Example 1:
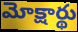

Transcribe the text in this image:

మోక్షార్థు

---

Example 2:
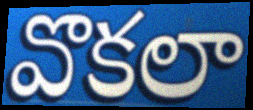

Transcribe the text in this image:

వొకలా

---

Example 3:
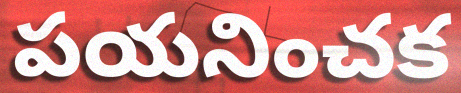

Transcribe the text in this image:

పయనించక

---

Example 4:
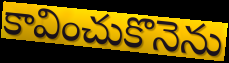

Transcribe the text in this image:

కావించుకొనెను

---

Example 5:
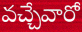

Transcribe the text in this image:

వచ్చేవారో